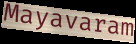
Mayavaram